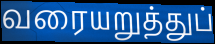
வரையறுத்துப்